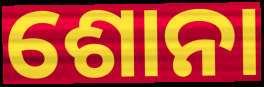
ଶୋନା